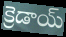
క్రెడాయ్